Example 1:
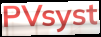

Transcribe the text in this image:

PVsyst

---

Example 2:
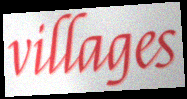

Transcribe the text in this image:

villages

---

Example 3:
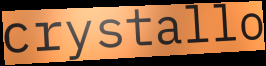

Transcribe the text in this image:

crystallo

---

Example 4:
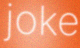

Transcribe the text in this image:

joke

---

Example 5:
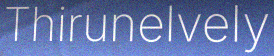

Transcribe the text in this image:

Thirunelvely